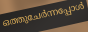
ഒത്തുചേർന്നപ്പോൾ